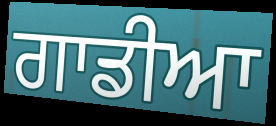
ਗਾਡੀਆ